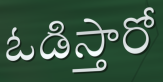
ఓడిస్తారో